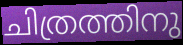
ചിത്രത്തിനു